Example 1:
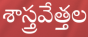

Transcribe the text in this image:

శాస్త్రవేత్తల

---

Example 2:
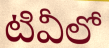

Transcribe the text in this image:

టివీలో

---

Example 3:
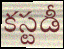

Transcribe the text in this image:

కస్టడీ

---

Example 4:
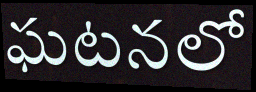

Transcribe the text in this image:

ఘటనలో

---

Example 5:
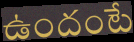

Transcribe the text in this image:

ఉందంటే